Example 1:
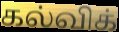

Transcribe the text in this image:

கல்விக்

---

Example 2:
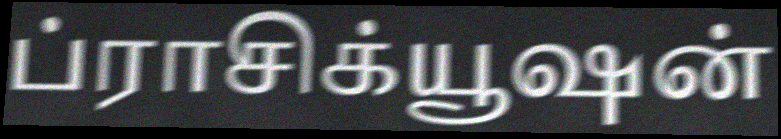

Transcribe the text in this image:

ப்ராசிக்யூஷன்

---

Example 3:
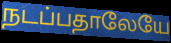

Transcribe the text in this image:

நடப்பதாலேயே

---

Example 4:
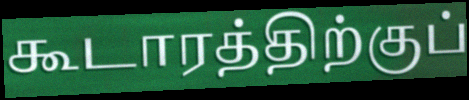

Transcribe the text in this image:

கூடாரத்திற்குப்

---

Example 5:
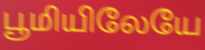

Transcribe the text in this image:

பூமியிலேயே